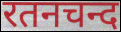
रतनचन्द